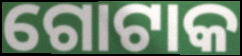
ଗୋଟାକ